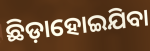
ଛିଡ଼ାହୋଇଯିବା